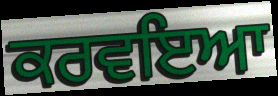
ਕਰਵਇਆ